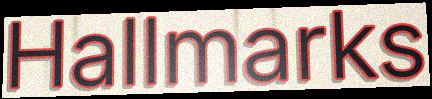
Hallmarks